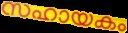
സഹായകം